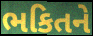
ભકિતને